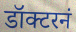
डॉक्टरनं